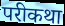
परीकथा